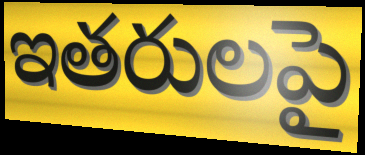
ఇతరులపై